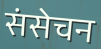
संसेचन